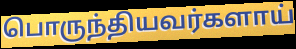
பொருந்தியவர்களாய்